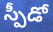
స్పీడో